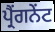
ਪ੍ਰੈਂਗਨੇਂਟ